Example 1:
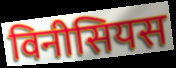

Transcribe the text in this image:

विनीसियस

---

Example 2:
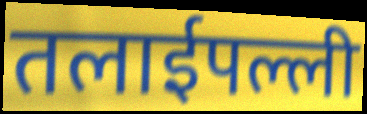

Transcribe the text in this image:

तलाईपल्ली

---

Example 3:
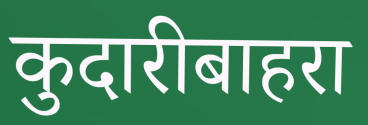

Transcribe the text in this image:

कुदारीबाहरा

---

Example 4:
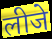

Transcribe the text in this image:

लीजे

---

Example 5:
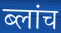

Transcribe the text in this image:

ब्लांच